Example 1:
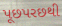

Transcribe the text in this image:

પૂછપરછથી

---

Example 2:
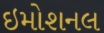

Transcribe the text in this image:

ઇમોશનલ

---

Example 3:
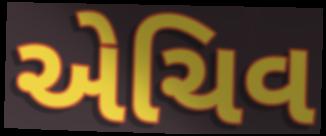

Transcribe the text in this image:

એચિવ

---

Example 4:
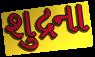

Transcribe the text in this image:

શુદ્રના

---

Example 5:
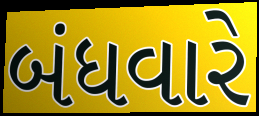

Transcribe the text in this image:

બંધવારે